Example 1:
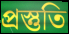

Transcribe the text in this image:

প্রস্তুতি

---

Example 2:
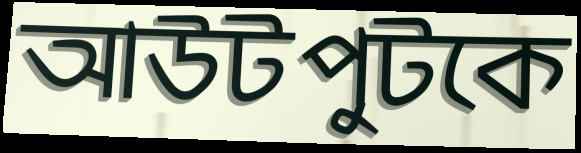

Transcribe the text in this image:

আউটপুটকে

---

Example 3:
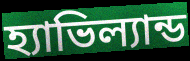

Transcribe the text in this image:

হ্যাভিল্যান্ড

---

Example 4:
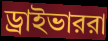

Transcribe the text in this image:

ড্রাইভাররা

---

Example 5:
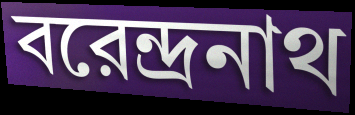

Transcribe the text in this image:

বরেন্দ্রনাথ